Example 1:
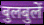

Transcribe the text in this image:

बुलबुलें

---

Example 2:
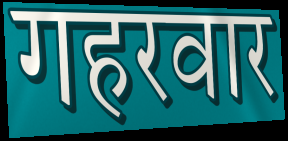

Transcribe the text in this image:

गहरवार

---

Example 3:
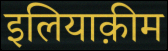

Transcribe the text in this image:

इलियाक़ीम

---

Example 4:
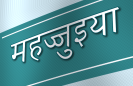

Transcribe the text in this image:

महज्जुइया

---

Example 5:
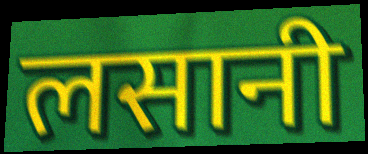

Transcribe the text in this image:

लसानी